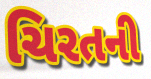
ચિરતની